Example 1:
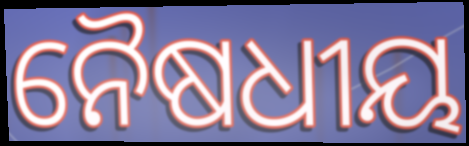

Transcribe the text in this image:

ନୈଷଧୀୟ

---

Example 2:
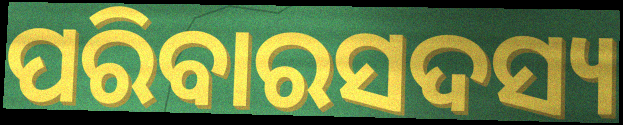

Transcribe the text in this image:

ପରିବାରସଦସ୍ୟ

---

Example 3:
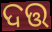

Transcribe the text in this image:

ଦତ୍ତ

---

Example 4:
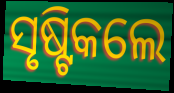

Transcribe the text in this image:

ସୃଷ୍ଟିକଲେ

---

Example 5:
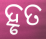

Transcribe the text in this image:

ହୃତ